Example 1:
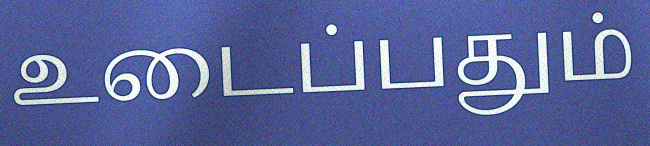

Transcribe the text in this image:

உடைப்பதும்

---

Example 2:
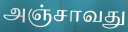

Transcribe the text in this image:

அஞ்சாவது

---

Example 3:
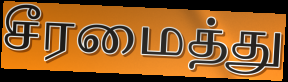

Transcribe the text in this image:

சீரமைத்து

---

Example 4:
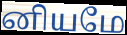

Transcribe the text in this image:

னியமே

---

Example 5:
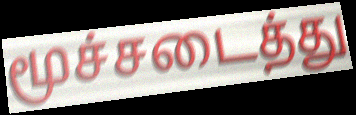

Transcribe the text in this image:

மூச்சடைத்து